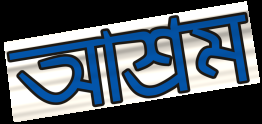
আশ্ৰম